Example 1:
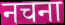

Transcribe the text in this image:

नचना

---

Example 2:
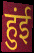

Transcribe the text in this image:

हुंई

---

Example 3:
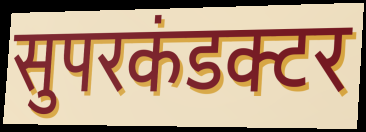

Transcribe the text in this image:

सुपरकंडक्टर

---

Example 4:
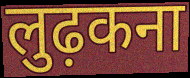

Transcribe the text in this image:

लुढ़कना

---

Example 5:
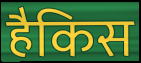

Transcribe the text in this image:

हैकिस